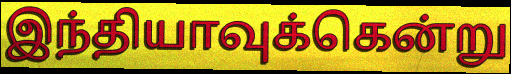
இந்தியாவுக்கென்று